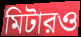
মিটারও